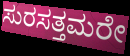
ಸುರಸತ್ತಮರೇ